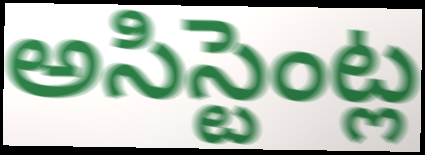
అసిస్టెంట్ల